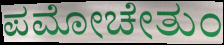
ಪಮೋಚೇತುಂ